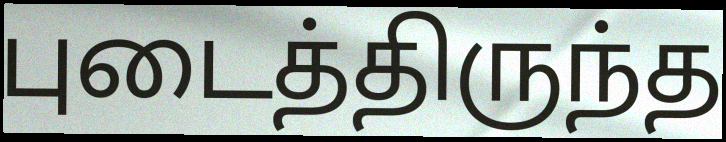
புடைத்திருந்த